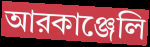
আরকাঞ্জেলি